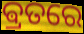
ଵ୍ରତରେ